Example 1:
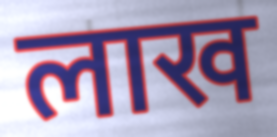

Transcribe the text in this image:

लाख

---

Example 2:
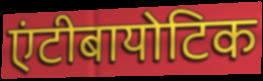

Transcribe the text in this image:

एंटीबायोटिक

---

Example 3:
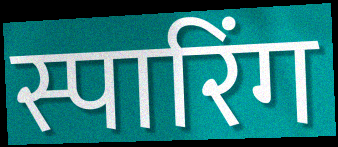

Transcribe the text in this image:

स्पारिंग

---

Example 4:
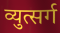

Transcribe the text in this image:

व्युत्सर्ग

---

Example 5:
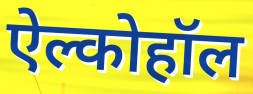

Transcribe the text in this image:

ऐल्कोहॉल